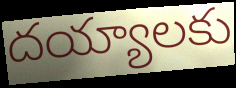
దయ్యాలకు